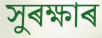
সুৰক্ষাৰ